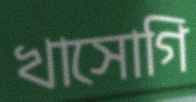
খাসোগি